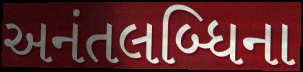
અનંતલબ્ધિના